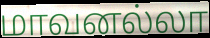
மாவனல்லா